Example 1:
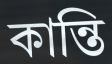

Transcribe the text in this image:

কান্তি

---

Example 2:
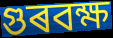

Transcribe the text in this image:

গুৰবক্ষ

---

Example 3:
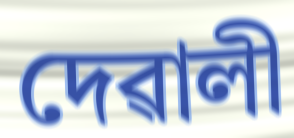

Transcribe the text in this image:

দেৱালী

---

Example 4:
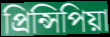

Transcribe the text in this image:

প্ৰিন্সিপিয়া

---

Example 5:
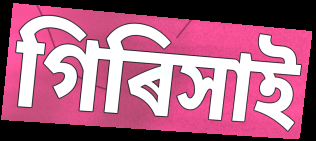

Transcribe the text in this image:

গিৰিসাই